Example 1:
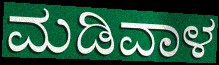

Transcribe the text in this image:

ಮಡಿವಾಳ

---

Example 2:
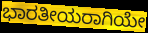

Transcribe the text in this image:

ಭಾರತೀಯರಾಗಿಯೇ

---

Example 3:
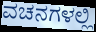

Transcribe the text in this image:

ವಚನಗಳಲ್ಲಿ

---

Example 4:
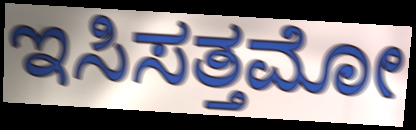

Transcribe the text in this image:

ಇಸಿಸತ್ತಮೋ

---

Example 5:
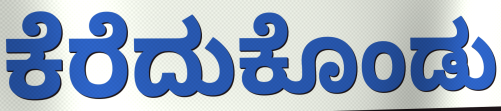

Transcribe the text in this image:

ಕೆರೆದುಕೊಂಡು